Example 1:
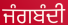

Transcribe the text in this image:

ਜੰਗਬੰਦੀ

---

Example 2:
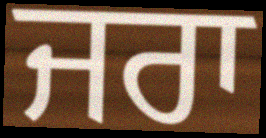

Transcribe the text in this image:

ਜਰਾ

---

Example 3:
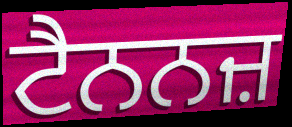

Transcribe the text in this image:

ਟੈਨਨਜ਼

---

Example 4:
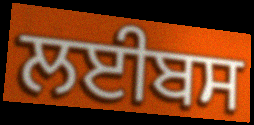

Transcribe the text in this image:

ਲਈਬਸ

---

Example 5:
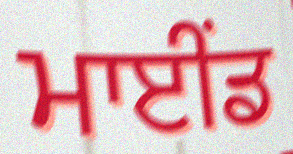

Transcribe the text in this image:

ਮਾਈਂਡ